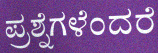
ಪ್ರಶ್ನೆಗಳೆಂದರೆ